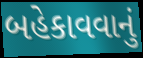
બહેકાવવાનું